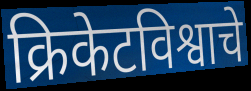
क्रिकेटविश्वाचे